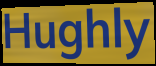
Hughly